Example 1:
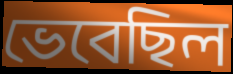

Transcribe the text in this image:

ভেবেছিল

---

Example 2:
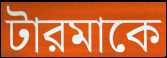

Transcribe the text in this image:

টারমাকে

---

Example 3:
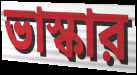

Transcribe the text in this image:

ভাস্কার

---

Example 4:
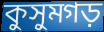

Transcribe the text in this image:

কুসুমগড়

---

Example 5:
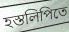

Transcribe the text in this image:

হস্তলিপিতে